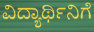
ವಿದ್ಯಾರ್ಥಿನಿಗೆ